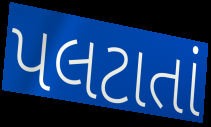
પલટાતાં